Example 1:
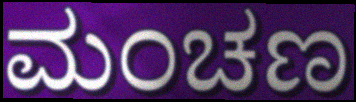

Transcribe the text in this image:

ಮಂಚಣ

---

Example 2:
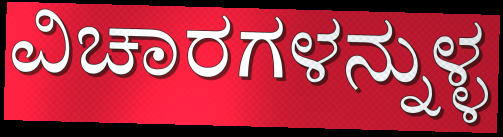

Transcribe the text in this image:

ವಿಚಾರಗಳನ್ನುಳ್ಳ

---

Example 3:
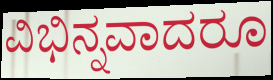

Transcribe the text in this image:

ವಿಭಿನ್ನವಾದರೂ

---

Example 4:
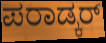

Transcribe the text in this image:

ಪರಾಡ್ಕರ್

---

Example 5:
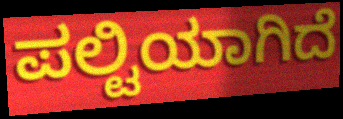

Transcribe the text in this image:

ಪಲ್ಟಿಯಾಗಿದೆ